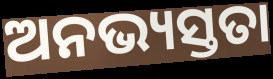
ଅନଭ୍ୟସ୍ତତା